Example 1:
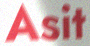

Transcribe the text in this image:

Asit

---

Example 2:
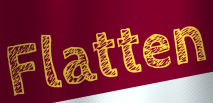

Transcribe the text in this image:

Flatten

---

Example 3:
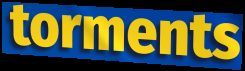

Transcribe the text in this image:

torments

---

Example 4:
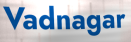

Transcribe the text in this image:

Vadnagar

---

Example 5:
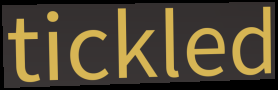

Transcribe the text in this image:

tickled